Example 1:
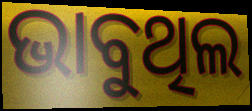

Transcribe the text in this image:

ଭାବୁଥିଲ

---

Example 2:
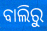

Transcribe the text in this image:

ବାଲିରୁ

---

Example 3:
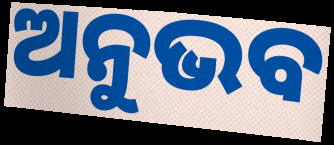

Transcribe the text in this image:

ଅନୁଭବ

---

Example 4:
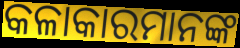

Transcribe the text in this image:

କଳାକାରମାନଙ୍କ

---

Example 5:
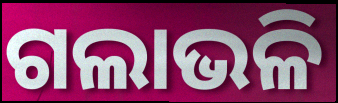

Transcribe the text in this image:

ଗଲାଭଳି